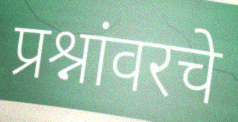
प्रश्नांवरचे